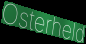
Osterheld